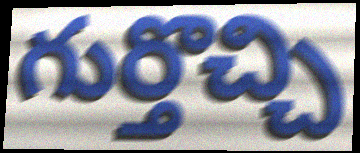
గుర్తొచ్చి